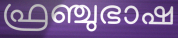
ഫ്രഞ്ചുഭാഷ